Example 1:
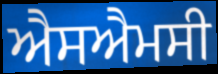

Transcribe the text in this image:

ਐਸਐਮਸੀ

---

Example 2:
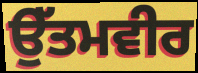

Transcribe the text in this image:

ਉੱਤਮਵੀਰ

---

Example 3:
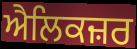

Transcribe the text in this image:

ਐਲਿਕਜ਼ਰ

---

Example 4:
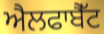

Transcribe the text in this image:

ਐਲਫਾਬੈੱਟ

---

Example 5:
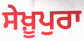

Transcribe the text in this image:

ਸੇਖ਼ੂਪੁਰਾ